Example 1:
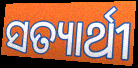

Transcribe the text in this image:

ସତ୍ୟାର୍ଥୀ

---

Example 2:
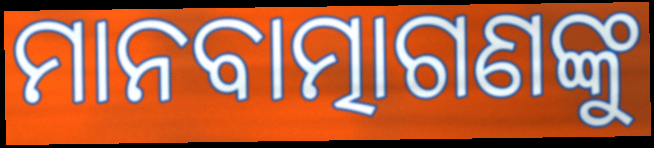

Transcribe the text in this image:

ମାନବାତ୍ମାଗଣଙ୍କୁ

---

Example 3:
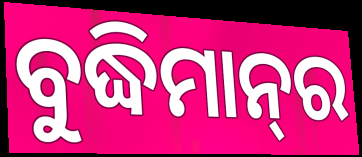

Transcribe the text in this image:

ବୁଦ୍ଧିମାନ୍‍ର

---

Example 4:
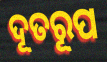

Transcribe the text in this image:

ଦୂତରୂପ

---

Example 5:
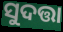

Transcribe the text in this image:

ସୁଦତ୍ତା